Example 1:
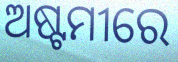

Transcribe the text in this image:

ଅଷ୍ଟମୀରେ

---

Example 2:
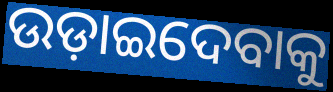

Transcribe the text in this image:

ଉଡ଼ାଇଦେବାକୁ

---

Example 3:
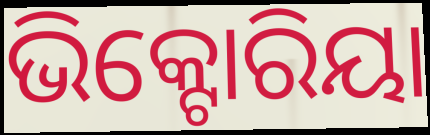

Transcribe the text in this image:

ଭିକ୍ଟୋରିୟା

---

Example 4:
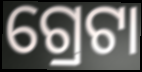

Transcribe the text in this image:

ଗ୍ରେଟା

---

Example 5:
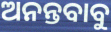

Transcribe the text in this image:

ଅନନ୍ତବାବୁ